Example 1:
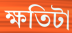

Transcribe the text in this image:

ক্ষতিটা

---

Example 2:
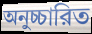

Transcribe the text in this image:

অনুচ্চারিত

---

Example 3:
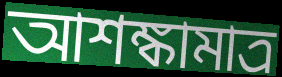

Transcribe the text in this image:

আশঙ্কামাত্র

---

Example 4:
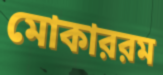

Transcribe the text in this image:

মোকাররম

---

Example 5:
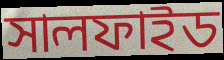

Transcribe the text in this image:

সালফাইড